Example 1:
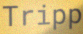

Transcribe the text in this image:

Tripp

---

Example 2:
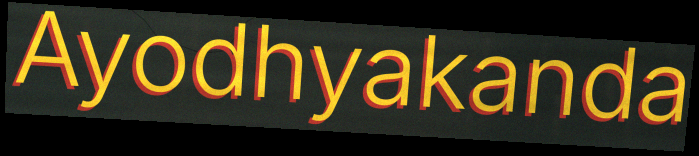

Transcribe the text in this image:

Ayodhyakanda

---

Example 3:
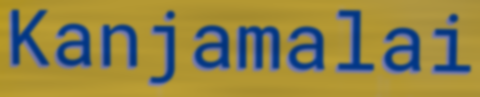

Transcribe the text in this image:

Kanjamalai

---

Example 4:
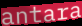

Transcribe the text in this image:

antara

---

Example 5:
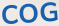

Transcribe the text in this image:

COG